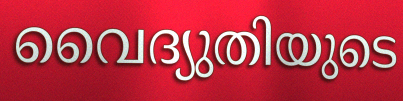
വൈദ്യുതിയുടെ